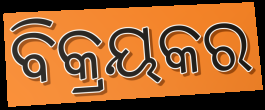
ବିକ୍ରୟକର